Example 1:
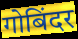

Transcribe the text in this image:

गोबिंदर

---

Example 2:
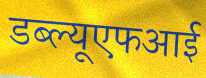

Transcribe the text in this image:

डब्ल्यूएफआई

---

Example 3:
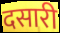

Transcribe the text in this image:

दसारी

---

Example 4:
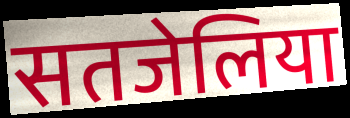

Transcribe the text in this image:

सतजेलिया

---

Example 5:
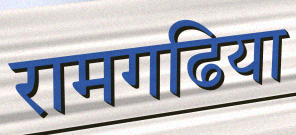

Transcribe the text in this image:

रामगढिया